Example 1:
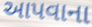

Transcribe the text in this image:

આપવાના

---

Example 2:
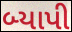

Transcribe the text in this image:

બ્યાપી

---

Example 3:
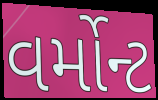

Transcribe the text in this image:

વર્મોન્ટ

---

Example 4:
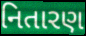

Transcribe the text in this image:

નિતારણ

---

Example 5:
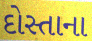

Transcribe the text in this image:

દોસ્તાના